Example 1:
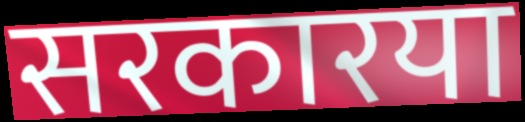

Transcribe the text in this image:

सरकारया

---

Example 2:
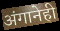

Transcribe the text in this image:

अंगानेही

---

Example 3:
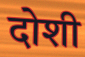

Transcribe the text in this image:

दोशी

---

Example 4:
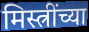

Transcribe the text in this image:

मिस्त्रींच्या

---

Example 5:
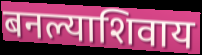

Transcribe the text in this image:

बनल्याशिवाय